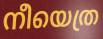
നീയെത്ര